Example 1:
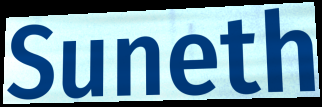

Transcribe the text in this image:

Suneth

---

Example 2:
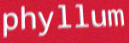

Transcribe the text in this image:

phyllum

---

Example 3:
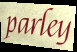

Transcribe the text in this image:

parley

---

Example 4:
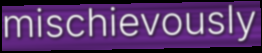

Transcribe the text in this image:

mischievously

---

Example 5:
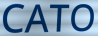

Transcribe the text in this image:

CATO